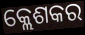
କ୍ଲେଶକର